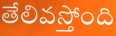
తేలివస్తోంది